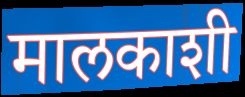
मालकाशी